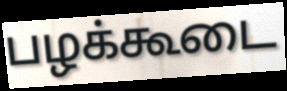
பழக்கூடை